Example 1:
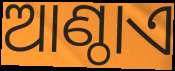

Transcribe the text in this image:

ଆଣ୍ଠାଏ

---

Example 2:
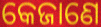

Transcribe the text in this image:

କେଜାଣେ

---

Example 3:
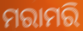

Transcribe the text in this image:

ମରାମରି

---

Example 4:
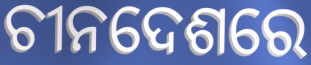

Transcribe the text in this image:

ଚୀନଦେଶରେ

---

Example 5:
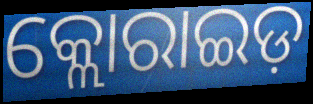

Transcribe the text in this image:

କ୍ଲୋରାଇଡ଼